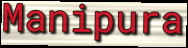
Manipura